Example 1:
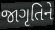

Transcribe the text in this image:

જાગૃતિને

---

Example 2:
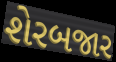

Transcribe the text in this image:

શેરબજાર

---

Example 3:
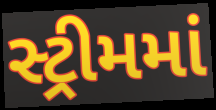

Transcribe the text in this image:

સ્ટ્રીમમાં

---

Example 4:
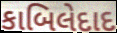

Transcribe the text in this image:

કાબિલેદાદ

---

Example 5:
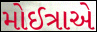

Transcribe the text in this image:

મોઈત્રાએ